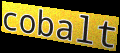
cobalt